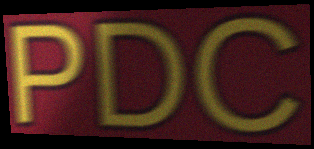
PDC